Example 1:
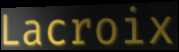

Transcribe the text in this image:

Lacroix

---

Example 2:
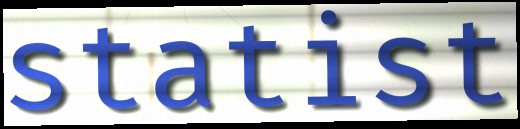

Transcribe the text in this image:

statist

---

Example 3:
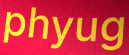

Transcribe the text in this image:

phyug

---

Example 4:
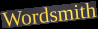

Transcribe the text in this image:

Wordsmith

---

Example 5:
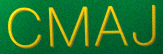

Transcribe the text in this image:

CMAJ